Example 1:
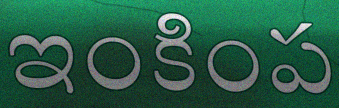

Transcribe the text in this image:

ఇంకింప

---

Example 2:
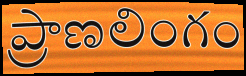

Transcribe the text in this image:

ప్రాణలింగం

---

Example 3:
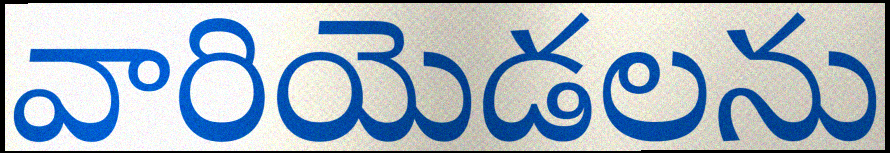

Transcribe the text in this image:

వారియెడలను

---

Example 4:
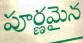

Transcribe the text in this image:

పూర్ణమైన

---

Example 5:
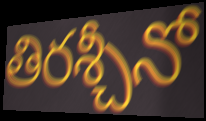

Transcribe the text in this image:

తిరశ్చీనో